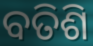
ବତିଶି